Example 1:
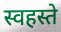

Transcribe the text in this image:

स्वहस्ते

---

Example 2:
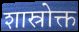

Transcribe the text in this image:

शास्रोक्त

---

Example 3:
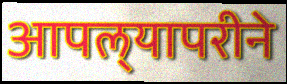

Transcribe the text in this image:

आपल्यापरीने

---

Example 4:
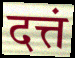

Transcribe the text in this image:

दत्तं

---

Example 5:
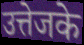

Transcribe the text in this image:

उत्तेजके